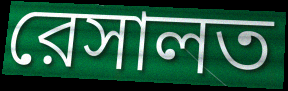
রেসালত